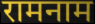
रामनाम